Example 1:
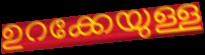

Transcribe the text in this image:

ഉറക്കേയുള്ള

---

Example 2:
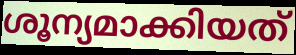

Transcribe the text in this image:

ശൂന്യമാക്കിയത്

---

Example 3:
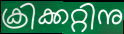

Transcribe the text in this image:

ക്രിക്കറ്റിനു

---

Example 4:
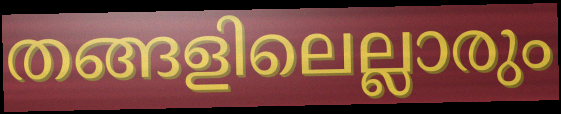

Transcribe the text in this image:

തങ്ങളിലെല്ലാരും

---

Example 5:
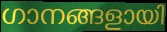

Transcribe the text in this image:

ഗാനങ്ങളായി